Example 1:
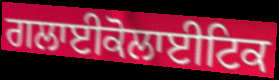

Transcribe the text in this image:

ਗਲਾਈਕੋਲਾਈਟਿਕ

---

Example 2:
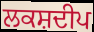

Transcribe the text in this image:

ਲਕਸ਼ਦੀਪ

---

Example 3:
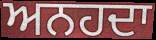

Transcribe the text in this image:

ਅਨਹਦਾ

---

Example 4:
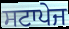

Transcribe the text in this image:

ਸਟਾਪੇਜ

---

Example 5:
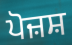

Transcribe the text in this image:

ਪੋਜ਼ਸ਼